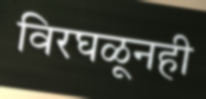
विरघळूनही